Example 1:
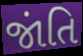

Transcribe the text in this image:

જાંતિ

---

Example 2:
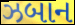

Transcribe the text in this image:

ઝબાન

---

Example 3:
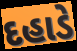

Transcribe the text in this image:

દહાડે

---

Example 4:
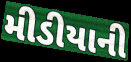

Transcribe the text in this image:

મીડીયાની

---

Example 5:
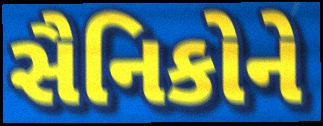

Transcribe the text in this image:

સૈનિકોને